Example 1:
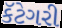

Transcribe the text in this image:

કૅટેગરી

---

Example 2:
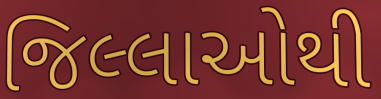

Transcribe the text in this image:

જિલ્લાઓથી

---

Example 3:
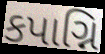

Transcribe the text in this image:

કપાગ્નિ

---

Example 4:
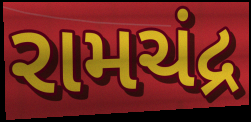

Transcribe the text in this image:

રામચંદ્ર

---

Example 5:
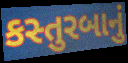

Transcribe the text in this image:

કસ્તુરબાનું